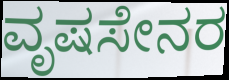
ವೃಷಸೇನರ